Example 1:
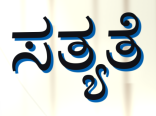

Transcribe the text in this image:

ಸತ್ಯತೆ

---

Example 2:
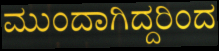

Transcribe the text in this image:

ಮುಂದಾಗಿದ್ದರಿಂದ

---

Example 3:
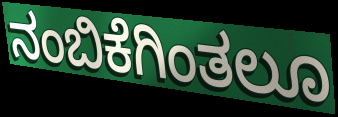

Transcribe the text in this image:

ನಂಬಿಕೆಗಿಂತಲೂ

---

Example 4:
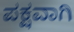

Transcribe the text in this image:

ಪಕ್ಷವಾಗಿ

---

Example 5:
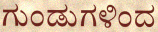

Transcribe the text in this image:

ಗುಂಡುಗಳಿಂದ